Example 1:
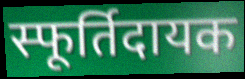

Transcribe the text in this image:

स्फूर्तिदायक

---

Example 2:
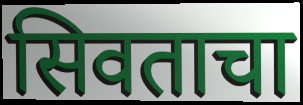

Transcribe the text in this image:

सिवताचा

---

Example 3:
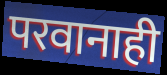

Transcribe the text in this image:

परवानाही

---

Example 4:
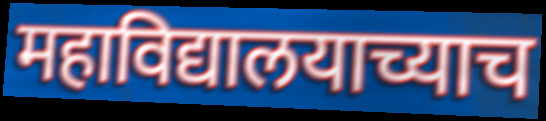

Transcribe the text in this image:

महाविद्यालयाच्याच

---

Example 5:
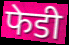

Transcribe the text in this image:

फेडी